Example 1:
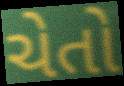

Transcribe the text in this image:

ચેતો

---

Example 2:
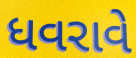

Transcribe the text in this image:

ધવરાવે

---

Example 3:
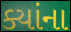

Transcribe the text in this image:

ક્યાંના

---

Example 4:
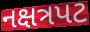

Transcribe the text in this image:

નક્ષત્રપટ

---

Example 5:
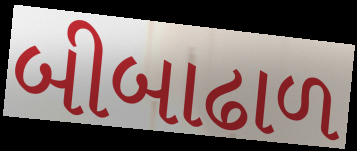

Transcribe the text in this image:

બીબાઢાળ